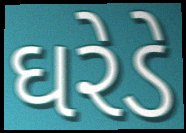
ઘરેડે